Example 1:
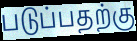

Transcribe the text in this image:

படுப்பதற்கு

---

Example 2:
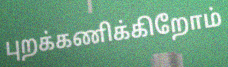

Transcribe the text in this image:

புறக்கணிக்கிறோம்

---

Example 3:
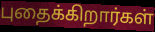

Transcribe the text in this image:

புதைக்கிறார்கள்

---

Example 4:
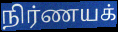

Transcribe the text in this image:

நிர்ணயக்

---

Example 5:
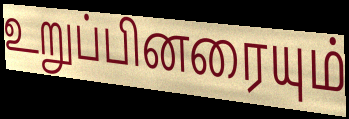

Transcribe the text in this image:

உறுப்பினரையும்